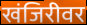
खंजिरीवर